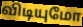
விடியுமோ